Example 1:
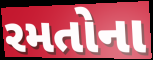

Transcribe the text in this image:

રમતોના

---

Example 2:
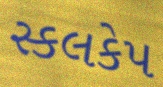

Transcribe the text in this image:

સ્કલકેપ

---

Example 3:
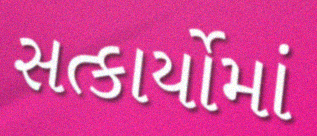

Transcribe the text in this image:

સત્કાર્યોમાં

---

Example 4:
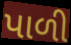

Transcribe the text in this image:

પાળી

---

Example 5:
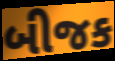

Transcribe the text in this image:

બીજક